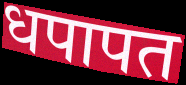
धपापत